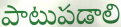
పాటుపడాలి